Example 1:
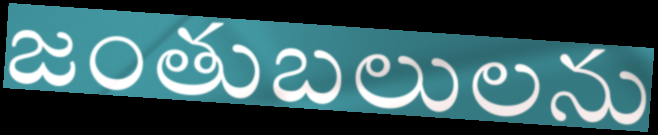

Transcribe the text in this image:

జంతుబలులను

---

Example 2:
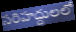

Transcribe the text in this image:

సరిహద్దులలో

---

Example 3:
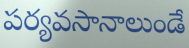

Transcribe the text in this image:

పర్యవసానాలుండే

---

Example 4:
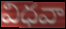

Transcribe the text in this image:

విధవా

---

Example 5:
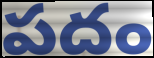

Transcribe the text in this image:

పదం